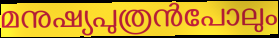
മനുഷ്യപുത്രൻപോലും